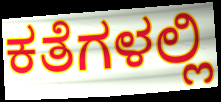
ಕತೆಗಳಲ್ಲಿ